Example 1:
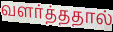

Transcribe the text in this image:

வளர்த்ததால்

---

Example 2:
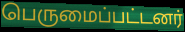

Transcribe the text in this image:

பெருமைப்பட்டனர்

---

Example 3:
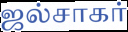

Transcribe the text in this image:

ஜல்சாகர்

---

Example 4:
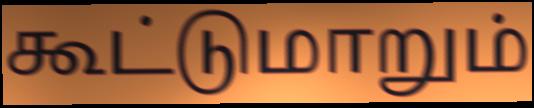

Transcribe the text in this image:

கூட்டுமாறும்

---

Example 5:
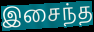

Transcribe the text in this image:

இசைந்த